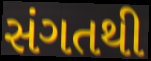
સંગતથી